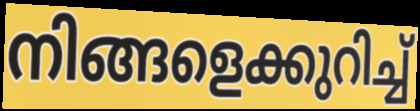
നിങ്ങളെക്കുറിച്ച്